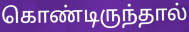
கொண்டிருந்தால்